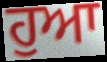
ਹੁਆ